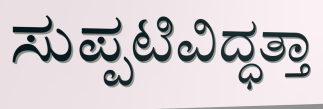
ಸುಪ್ಪಟಿವಿದ್ಧತ್ತಾ